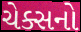
ચેક્સનો